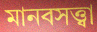
মানবসত্ত্বা